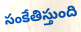
సంకేతిస్తుంది